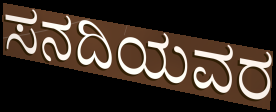
ಸನದಿಯವರ